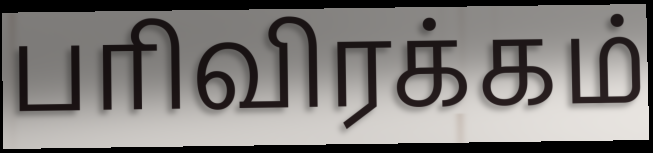
பரிவிரக்கம்